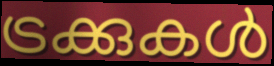
ട്രക്കുകൾ